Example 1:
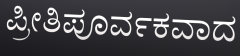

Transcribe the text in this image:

ಪ್ರೀತಿಪೂರ್ವಕವಾದ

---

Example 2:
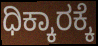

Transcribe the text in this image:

ಧಿಕ್ಕಾರಕ್ಕೆ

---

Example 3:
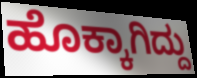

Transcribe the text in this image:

ಹೊಕ್ಕಾಗಿದ್ದು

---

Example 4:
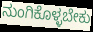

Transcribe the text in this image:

ನುಂಗಿಕೊಳ್ಳಬೇಕು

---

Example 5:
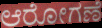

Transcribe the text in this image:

ಆರೋಗಣೆ